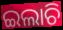
ଇଲାଚି